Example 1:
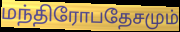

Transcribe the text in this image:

மந்திரோபதேசமும்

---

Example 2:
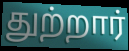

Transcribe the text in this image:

துற்றார்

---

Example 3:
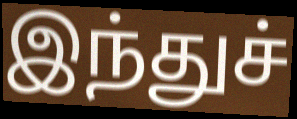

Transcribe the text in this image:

இந்துச்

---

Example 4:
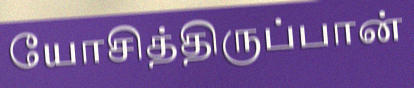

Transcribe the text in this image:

யோசித்திருப்பான்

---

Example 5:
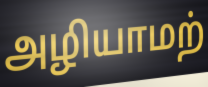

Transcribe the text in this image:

அழியாமற்